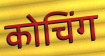
कोचिंग